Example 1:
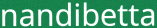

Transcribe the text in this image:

nandibetta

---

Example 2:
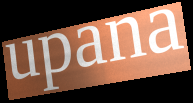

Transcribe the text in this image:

upana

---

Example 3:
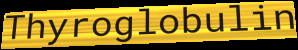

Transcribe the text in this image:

Thyroglobulin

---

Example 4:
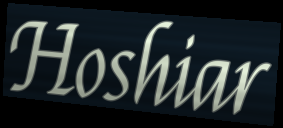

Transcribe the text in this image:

Hoshiar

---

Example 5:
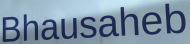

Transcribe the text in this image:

Bhausaheb